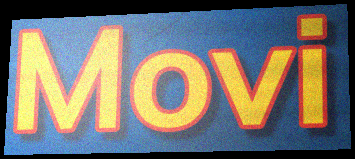
Movi